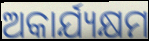
ଅକାର୍ଯ୍ୟକ୍ଷମ